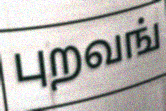
புறவங்